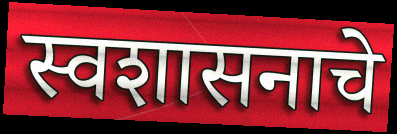
स्वशासनाचे